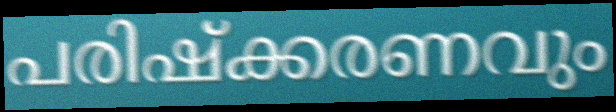
പരിഷ്ക്കരണവും